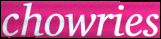
chowries